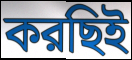
করছিই